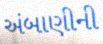
અંબાણીની